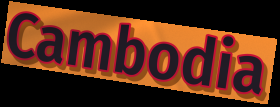
Cambodia